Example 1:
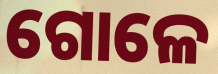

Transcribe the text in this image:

ଗୋଳେ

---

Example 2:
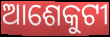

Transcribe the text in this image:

ଆଶେକୁଟୀ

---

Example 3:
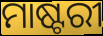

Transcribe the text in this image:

ମାଷ୍ଟରୀ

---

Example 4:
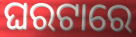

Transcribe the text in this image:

ଘରଟାରେ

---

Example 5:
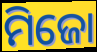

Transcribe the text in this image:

ମିଜୋ